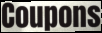
Coupons